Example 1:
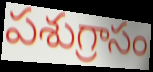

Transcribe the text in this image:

పశుగ్రాసం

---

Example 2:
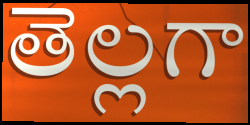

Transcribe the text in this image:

తెల్లగా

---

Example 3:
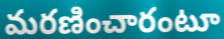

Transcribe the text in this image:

మరణించారంటూ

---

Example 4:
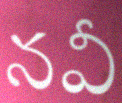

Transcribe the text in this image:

నవీ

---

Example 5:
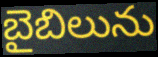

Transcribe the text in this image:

బైబిలును